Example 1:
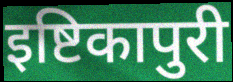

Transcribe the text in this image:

इष्टिकापुरी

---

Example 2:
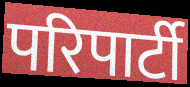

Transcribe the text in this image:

परिपार्टी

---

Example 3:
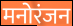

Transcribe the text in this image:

मनोरंजन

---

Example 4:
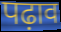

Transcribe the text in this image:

पढ़ाव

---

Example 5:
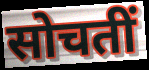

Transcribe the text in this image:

सोचतीं